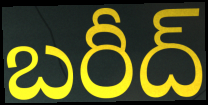
బరీద్